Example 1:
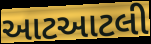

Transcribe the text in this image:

આટઆટલી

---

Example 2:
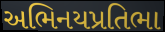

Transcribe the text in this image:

અભિનયપ્રતિભા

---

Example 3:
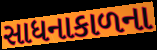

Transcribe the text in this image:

સાધનાકાળના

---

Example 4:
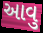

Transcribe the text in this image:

આવુ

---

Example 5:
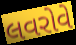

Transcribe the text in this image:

લવરોવે